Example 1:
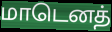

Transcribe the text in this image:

மாடெனத்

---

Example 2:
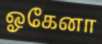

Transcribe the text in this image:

ஓகேனா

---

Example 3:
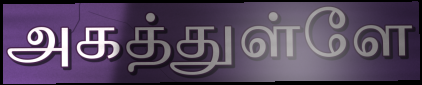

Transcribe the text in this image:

அகத்துள்ளே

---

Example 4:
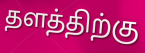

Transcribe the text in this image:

தளத்திற்கு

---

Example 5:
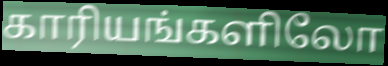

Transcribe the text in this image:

காரியங்களிலோ